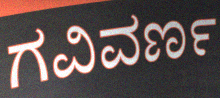
ಗವಿವರ್ಣ